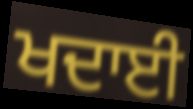
ਖਦਾਈ